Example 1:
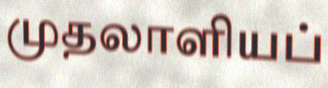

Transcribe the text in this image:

முதலாளியப்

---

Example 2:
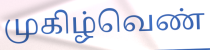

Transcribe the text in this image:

முகிழ்வெண்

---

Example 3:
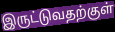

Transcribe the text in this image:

இருட்டுவதற்குள்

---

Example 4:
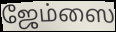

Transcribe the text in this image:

ஜேம்ஸை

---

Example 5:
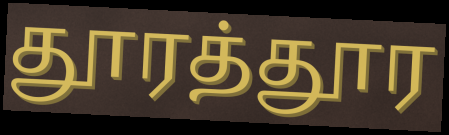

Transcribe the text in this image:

தூரத்தூர